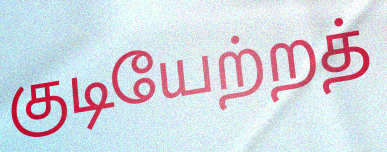
குடியேற்றத்